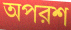
অপরশ